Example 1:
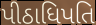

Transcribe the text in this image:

પીઠાધિપતિ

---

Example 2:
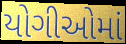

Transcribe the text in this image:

યોગીઓમાં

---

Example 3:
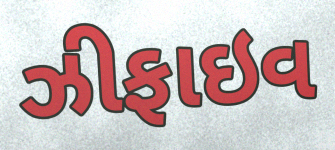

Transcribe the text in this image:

ઝીફાઇવ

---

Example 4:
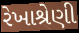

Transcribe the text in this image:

રેખાશ્રેણી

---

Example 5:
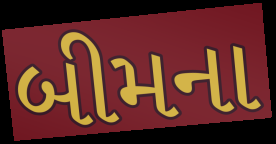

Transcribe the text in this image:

બીમના